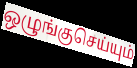
ஒழுங்குசெய்யும்